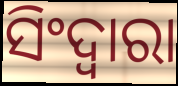
ସିଂଦ୍ୱାରା